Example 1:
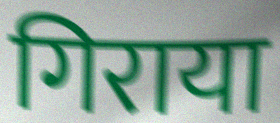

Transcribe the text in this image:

गिराया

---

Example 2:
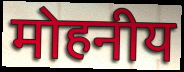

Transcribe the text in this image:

मोहनीय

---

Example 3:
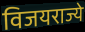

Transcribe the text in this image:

विजयराज्ये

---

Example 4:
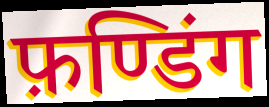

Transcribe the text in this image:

फ़ण्डिंग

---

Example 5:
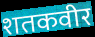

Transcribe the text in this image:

शतकवीर